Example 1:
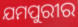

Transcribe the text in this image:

ଯମପୁରୀର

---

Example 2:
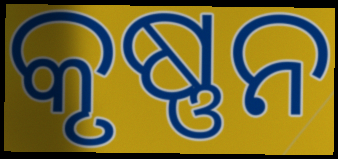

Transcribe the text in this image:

କୃଷ୍ଣନ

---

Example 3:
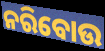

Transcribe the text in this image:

ନରିବୋଉ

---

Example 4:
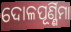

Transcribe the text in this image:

ଦୋଳପୂର୍ଣ୍ଣିମା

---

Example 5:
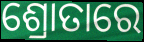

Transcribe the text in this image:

ଶ୍ରୋତାରେ